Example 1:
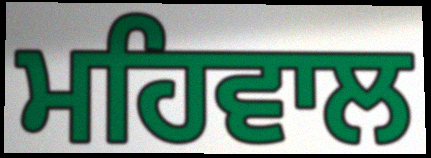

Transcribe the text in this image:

ਮਹਿਵਾਲ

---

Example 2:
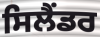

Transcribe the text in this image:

ਸਿਲੈਂਡਰ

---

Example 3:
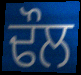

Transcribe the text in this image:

ਢੌਲ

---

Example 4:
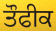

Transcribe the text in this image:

ਤੌਫੀਕ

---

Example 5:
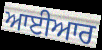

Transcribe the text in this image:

ਆਈਆਰ